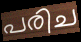
പരിച